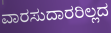
ವಾರಸುದಾರರಿಲ್ಲದ